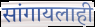
सांगायलाही